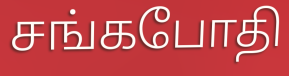
சங்கபோதி